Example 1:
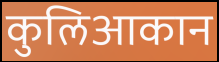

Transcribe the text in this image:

कुलिआकान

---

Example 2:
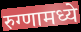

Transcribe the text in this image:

रुग्णामध्ये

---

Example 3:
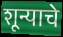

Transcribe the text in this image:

शून्याचे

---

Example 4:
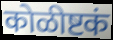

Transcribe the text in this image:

कोळीष्टकं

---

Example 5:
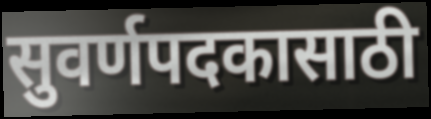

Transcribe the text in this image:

सुवर्णपदकासाठी